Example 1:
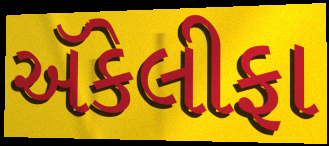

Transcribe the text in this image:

ઍકેલીફા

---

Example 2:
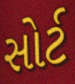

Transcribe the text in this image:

સોર્ટ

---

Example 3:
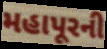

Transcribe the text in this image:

મહાપૂરની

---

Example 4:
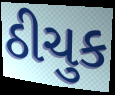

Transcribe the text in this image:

ઠીચુક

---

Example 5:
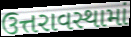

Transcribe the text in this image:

ઉત્તરાવસ્થામાં